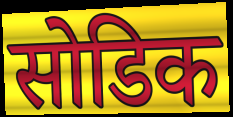
सोडिक